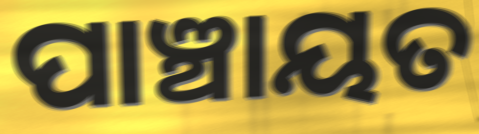
ପାଞ୍ଚାୟତ